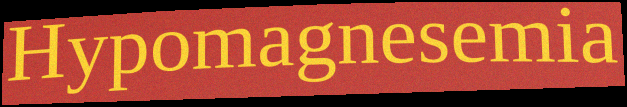
Hypomagnesemia